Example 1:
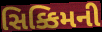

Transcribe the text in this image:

સિક્કિમની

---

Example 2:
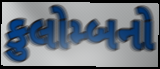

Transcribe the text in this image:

કુલોમ્બનો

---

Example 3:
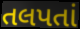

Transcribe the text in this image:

તલપતાં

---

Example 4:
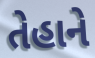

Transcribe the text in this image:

તેહાને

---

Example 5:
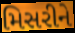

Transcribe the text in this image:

મિસરીને